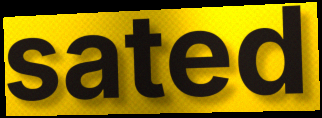
sated